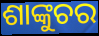
ଶାଙ୍କୁଚର